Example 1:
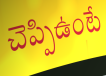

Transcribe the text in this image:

చెప్పిఉంటే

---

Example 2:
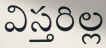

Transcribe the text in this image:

విస్తరిల్ల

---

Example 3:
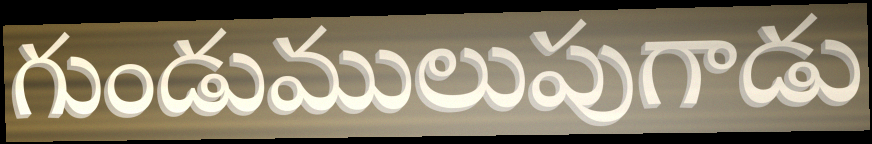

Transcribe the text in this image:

గుండుములుపుగాడు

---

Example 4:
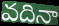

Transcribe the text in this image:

వదినా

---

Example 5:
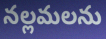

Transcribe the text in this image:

నల్లమలను